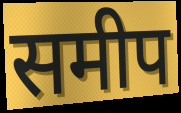
समीप